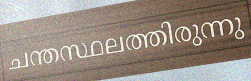
ചന്തസ്ഥലത്തിരുന്നു